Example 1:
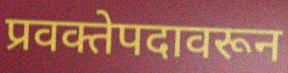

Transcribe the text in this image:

प्रवक्तेपदावरून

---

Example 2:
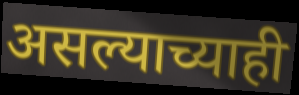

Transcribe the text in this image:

असल्याच्याही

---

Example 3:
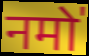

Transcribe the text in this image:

नमो॑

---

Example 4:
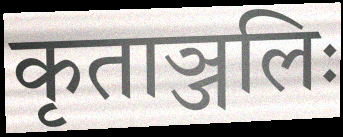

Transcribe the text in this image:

कृताञ्जलिः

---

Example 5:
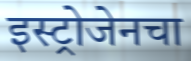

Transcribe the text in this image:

इस्ट्रोजेनचा